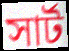
সার্ট